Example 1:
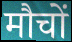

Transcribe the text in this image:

मौचों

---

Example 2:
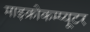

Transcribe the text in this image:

माइक्रोकम्प्यूटर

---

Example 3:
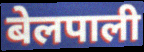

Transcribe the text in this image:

बेलपाली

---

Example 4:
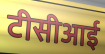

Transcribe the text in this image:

टीसीआई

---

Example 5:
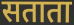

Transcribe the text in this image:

सताता